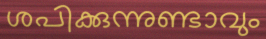
ശപിക്കുന്നുണ്ടാവും